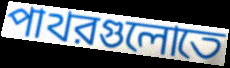
পাথরগুলোতে